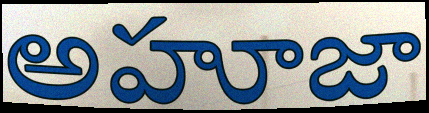
అహూజా